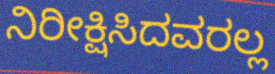
ನಿರೀಕ್ಷಿಸಿದವರಲ್ಲ